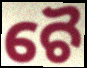
ଚୈ